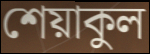
শেয়াকুল